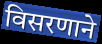
विसरणाने